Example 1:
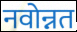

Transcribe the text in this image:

नवोन्नत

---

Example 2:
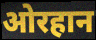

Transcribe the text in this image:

ओरहान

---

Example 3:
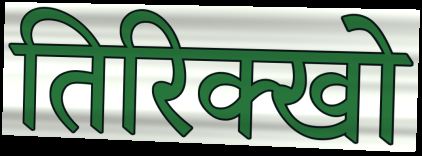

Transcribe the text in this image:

तिरिक्खो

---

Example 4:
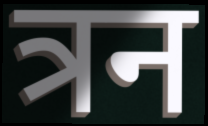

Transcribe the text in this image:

त्रन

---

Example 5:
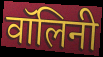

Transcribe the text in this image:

वॉलिनी